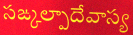
సఙ్కల్పాదేవాస్య